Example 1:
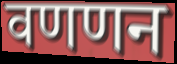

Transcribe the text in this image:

वणणन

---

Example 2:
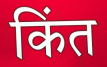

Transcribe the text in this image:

किंत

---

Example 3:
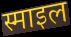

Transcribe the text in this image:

स्माइल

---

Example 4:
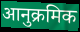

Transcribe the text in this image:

आनुक्रमिक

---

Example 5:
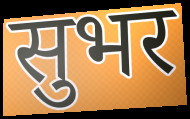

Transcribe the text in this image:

सुभर